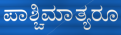
ಪಾಶ್ಚಿಮಾತ್ಯರೂ